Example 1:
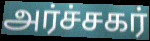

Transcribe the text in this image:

அர்ச்சகர்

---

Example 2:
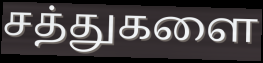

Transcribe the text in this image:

சத்துகளை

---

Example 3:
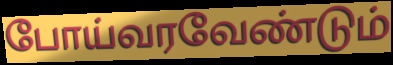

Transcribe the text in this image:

போய்வரவேண்டும்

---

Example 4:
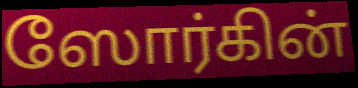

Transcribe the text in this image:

ஸோர்கின்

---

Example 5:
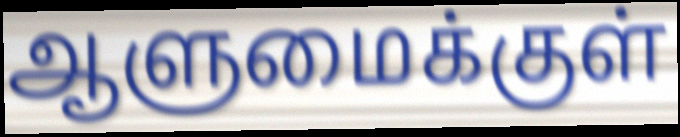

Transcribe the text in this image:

ஆளுமைக்குள்